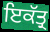
ਇਕੱਤ੍ਰ